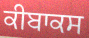
ਕੀਬਾਕਸ